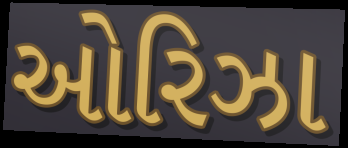
ઓરિઝા